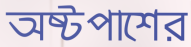
অষ্টপাশের